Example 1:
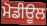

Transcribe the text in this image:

ਮੋਡੀਊਲ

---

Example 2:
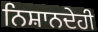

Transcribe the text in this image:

ਨਿਸ਼ਾਨਦੇਹੀ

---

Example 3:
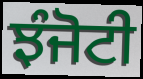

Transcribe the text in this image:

ਝੰਜੋਟੀ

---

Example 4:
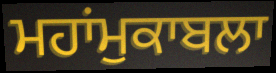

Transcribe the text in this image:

ਮਹਾਂਮੁਕਾਬਲਾ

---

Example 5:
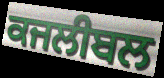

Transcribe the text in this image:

ਕਜਲੀਬਲ